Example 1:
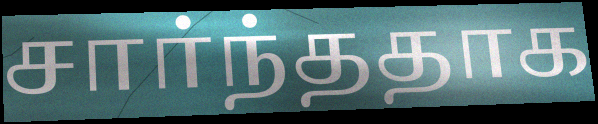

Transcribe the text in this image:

சார்ந்ததாக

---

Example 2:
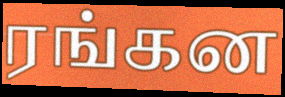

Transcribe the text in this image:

ரங்கன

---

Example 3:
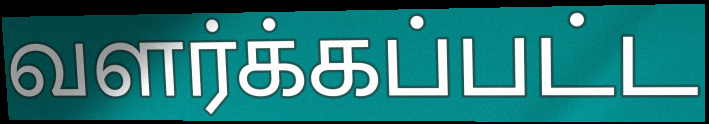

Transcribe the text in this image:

வளர்க்கப்பட்ட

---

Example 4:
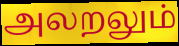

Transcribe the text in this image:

அலறலும்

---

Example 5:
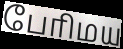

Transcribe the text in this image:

பேரிமய